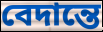
বেদান্তে